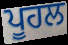
ਪੂਹਲ